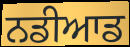
ਨਡੀਆਡ